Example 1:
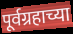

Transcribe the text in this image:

पूर्वग्रहाच्या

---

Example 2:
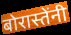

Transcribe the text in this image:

बोरास्तेंनी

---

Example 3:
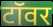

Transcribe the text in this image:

टॉवर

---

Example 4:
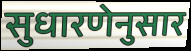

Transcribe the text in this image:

सुधारणेनुसार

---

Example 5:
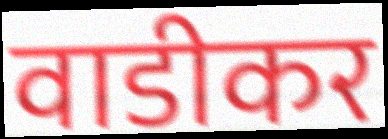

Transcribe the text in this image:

वाडीकर